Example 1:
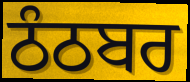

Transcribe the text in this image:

ਠੰਠਬਰ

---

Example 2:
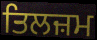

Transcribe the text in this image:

ਤਿਲਜ਼ਮ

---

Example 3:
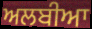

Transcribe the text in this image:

ਅਲਬੀਆ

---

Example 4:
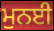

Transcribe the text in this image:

ਮੁਨਈ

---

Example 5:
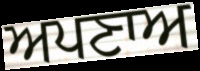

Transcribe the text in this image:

ਅਪਣਾਅ